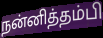
நன்னித்தம்பி